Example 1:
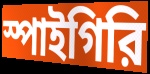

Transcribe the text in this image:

স্পাইগিরি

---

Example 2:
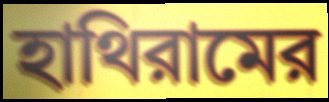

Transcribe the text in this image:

হাথিরামের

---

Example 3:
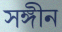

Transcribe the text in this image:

সঙ্গীন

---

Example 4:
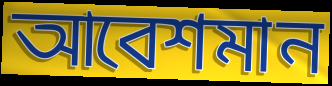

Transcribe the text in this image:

আবেশমান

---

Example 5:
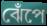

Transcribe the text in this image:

ঝেঁপে